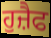
ਹੁਜ਼ੈਫ